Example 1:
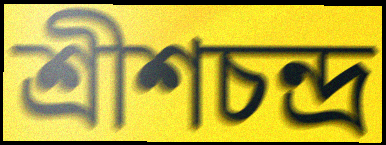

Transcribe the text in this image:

শ্রীশচন্দ্র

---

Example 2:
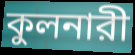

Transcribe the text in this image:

কুলনারী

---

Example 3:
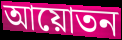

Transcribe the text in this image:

আয়োতন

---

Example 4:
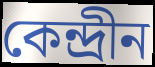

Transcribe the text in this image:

কেন্দ্রীন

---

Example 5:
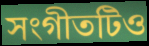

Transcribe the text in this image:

সংগীতটিও